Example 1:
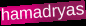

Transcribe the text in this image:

hamadryas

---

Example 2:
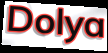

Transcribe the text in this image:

Dolya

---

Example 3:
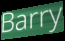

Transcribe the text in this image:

Barry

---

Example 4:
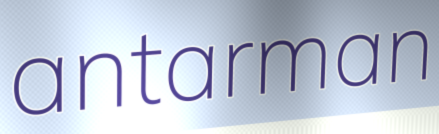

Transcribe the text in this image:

antarman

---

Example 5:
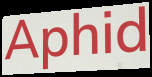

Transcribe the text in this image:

Aphid